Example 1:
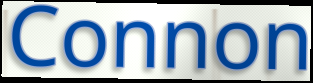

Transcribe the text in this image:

Connon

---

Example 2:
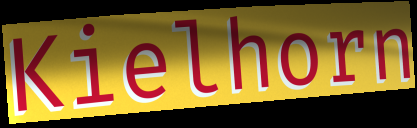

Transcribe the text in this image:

Kielhorn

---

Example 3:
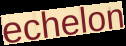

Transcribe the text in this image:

echelon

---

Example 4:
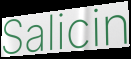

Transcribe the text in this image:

Salicin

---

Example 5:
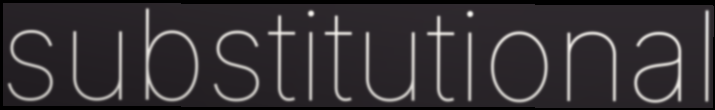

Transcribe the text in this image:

substitutional